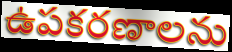
ఉపకరణాలను